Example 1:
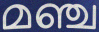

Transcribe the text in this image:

മഞ്ച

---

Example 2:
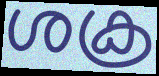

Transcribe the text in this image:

ശക്ര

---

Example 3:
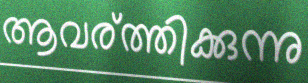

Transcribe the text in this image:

ആവര്ത്തിക്കുന്നു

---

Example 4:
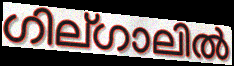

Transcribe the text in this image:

ഗില്ഗാലിൽ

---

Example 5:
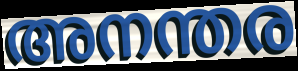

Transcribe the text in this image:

അനന്തര